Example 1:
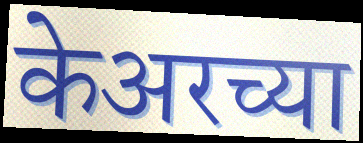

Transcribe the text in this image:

केअरच्या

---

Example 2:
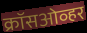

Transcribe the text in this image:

क्रॉसओव्हर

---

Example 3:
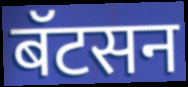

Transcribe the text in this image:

बॅटसन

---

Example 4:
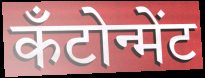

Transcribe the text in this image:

कँटोन्मेंट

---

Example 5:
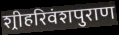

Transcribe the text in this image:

श्रीहरिवंशपुराण